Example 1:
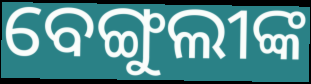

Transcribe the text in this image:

ବେଙ୍ଗୁଲୀଙ୍କ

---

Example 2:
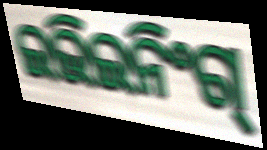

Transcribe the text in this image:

ଇଭିଇନିଂଗ୍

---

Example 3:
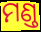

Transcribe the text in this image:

ମଣ୍ଡ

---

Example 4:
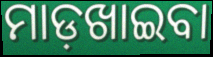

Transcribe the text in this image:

ମାଡ଼ଖାଇବା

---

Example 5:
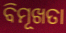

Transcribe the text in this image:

ବିମୂଖତା